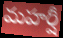
మహర్షీ